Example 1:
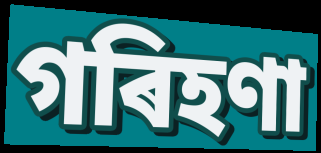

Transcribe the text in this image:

গৰিহণা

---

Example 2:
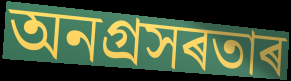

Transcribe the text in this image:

অনগ্ৰসৰতাৰ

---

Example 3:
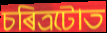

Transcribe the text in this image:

চৰিত্ৰটোত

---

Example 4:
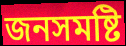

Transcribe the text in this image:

জনসমষ্টি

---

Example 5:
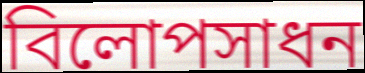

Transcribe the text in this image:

বিলোপসাধন